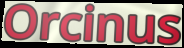
Orcinus